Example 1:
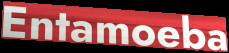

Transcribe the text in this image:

Entamoeba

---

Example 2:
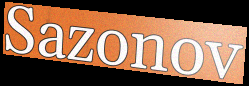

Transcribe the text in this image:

Sazonov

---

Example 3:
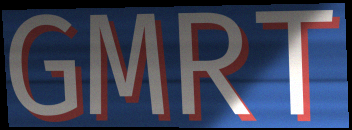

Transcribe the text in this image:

GMRT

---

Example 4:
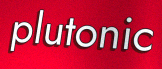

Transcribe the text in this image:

plutonic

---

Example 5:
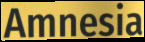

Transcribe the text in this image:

Amnesia